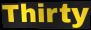
Thirty